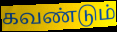
கவண்டும்